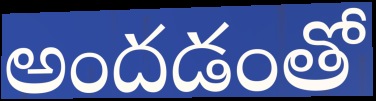
అందడంతో